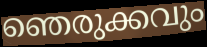
ഞെരുക്കവും